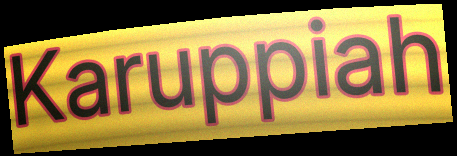
Karuppiah